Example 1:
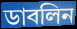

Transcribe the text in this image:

ডাবলিন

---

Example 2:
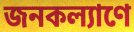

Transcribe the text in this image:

জনকল্যাণে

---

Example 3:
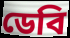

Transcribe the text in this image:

ডেবি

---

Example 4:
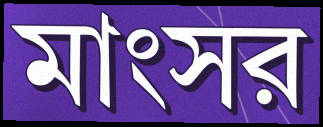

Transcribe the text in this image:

মাংসর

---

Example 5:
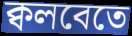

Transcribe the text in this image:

ক্বলবেতে